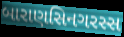
બારાણસિનગરસ્સ